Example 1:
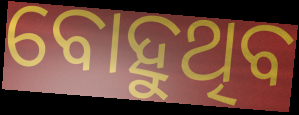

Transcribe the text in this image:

ବୋହୁଥିବ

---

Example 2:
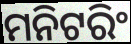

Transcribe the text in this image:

ମନିଟରିଂ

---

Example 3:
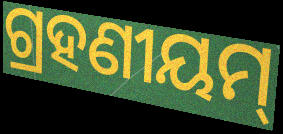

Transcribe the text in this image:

ଗ୍ରହଣୀୟମ୍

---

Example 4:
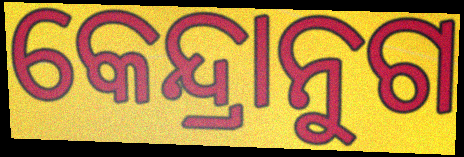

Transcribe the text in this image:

କେନ୍ଦ୍ରାନୁଗ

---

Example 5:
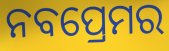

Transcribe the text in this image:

ନବପ୍ରେମର